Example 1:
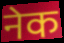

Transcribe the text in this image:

नेक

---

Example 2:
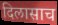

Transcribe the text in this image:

दिलासाच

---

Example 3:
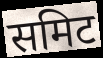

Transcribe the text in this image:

समिट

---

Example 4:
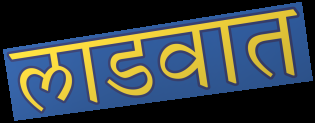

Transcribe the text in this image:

लाडवात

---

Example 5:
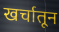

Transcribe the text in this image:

खर्चातून